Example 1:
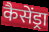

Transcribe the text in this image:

कैसेंड्रा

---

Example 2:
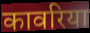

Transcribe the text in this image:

कावरिया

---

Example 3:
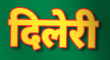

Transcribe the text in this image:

दिलेरी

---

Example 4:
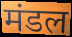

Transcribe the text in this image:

मंडल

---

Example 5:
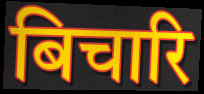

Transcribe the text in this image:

बिचारि